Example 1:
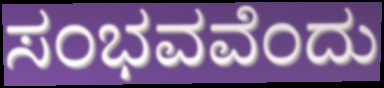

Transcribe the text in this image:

ಸಂಭವವೆಂದು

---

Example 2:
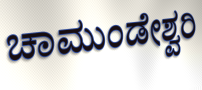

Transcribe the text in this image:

ಚಾಮುಂಡೇಶ್ವರಿ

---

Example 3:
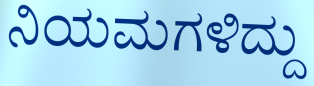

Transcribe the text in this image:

ನಿಯಮಗಳಿದ್ದು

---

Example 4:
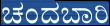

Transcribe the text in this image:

ಚಂದಬಾರಿ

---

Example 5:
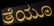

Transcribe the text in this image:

ತೆಯೂ